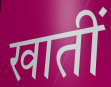
खातीं